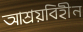
আশ্রয়বিহীন